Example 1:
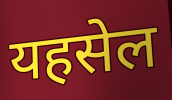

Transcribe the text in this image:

यहसेल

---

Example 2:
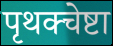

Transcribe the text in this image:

पृथक्चेष्टा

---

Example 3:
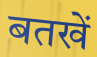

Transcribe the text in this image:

बतखें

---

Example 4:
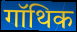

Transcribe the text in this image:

गॉथिक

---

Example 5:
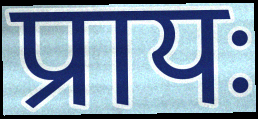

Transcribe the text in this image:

प्रायः